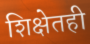
शिक्षेतही